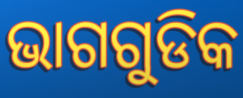
ଭାଗଗୁଡିକ